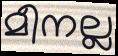
മീനല്ല